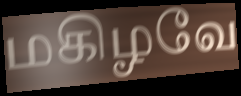
மகிழவே